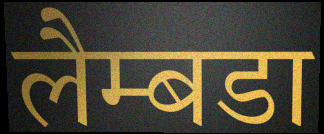
लैम्बडा